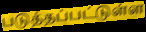
படுத்தப்பட்டுள்ள